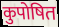
कुपोषित